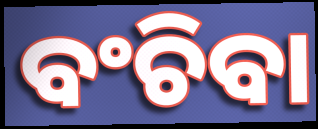
ବଂଚିବା